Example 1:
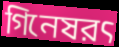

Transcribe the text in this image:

গিনেষরৎ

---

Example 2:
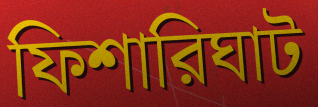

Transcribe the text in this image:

ফিশারিঘাট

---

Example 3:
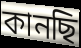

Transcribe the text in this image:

কানছি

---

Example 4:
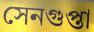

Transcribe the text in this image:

সেনগুপ্তা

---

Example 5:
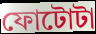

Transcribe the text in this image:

ফোটোটা